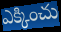
ఎక్కించు